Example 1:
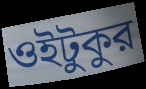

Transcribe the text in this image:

ওইটুকুর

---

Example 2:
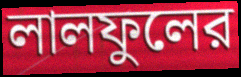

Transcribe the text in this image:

লালফুলের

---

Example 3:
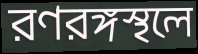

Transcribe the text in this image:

রণরঙ্গস্থলে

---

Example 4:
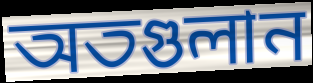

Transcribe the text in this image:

অতগুলান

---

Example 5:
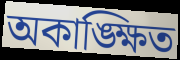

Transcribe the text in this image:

অকাঙ্ক্ষিত